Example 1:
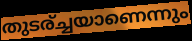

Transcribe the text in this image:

തുടര്ച്ചയാണെന്നും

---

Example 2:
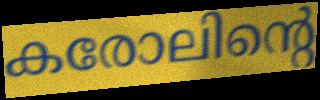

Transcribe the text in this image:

കരോലിന്റെ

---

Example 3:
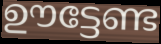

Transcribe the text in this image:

ഊട്ടേണ്ട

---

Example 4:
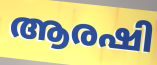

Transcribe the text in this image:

ആരഷി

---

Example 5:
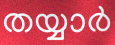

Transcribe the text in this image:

തയ്യാർ